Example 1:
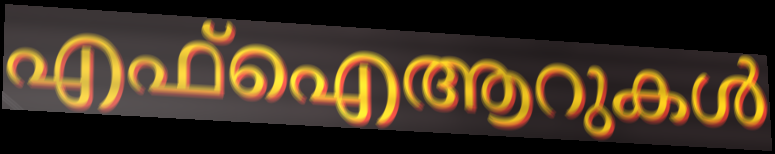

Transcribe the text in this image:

എഫ്ഐആറുകൾ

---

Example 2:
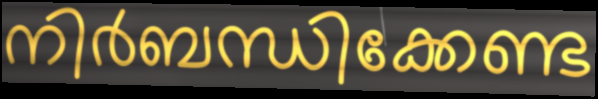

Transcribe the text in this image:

നിർബന്ധിക്കേണ്ട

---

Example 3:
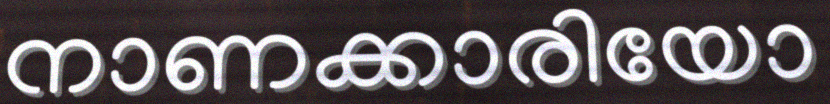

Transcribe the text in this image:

നാണക്കാരിയോ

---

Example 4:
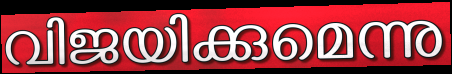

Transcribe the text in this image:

വിജയിക്കുമെന്നു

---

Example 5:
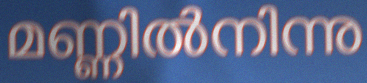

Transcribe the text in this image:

മണ്ണിൽനിന്നു